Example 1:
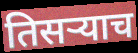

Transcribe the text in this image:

तिसर्‍याच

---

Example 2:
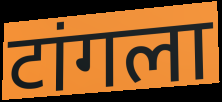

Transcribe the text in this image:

टांगला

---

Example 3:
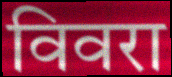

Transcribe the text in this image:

विवरा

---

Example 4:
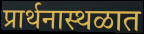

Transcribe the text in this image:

प्रार्थनास्थळात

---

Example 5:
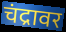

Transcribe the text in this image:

चंद्रावर